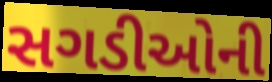
સગડીઓની